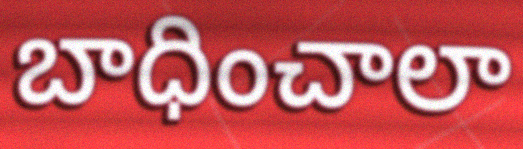
బాధించాలా